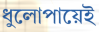
ধুলোপায়েই